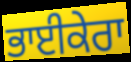
ਭਾਈਕੇਰਾ